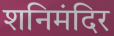
शनिमंदिर